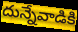
దున్నేవాడికి